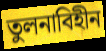
তুলনাবিহীন